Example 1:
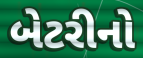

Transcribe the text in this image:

બેટરીનો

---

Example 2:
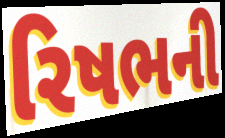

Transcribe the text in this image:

રિષભની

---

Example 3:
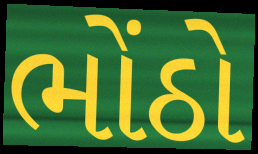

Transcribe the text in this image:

ભોંઠો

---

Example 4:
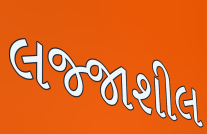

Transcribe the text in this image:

લજ્જાશીલ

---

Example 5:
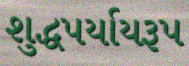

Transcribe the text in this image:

શુદ્ધપર્યાયરૂપ